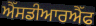
ਐੱਸਡੀਆਰਐੱਫ